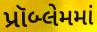
પ્રૉબ્લેમમાં